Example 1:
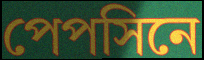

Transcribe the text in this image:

পেপসিনে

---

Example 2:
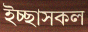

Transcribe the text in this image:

ইচ্ছাসকল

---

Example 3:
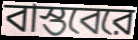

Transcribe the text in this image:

বাস্তবেরে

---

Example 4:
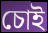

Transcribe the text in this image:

চোই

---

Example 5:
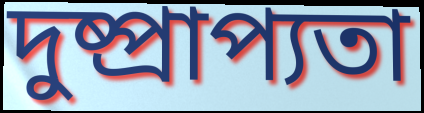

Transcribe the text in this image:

দুষ্প্রাপ্যতা